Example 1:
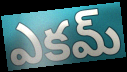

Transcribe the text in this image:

ఎకమ్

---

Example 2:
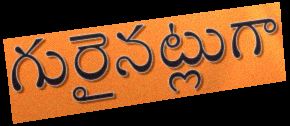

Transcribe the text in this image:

గురైనట్లుగా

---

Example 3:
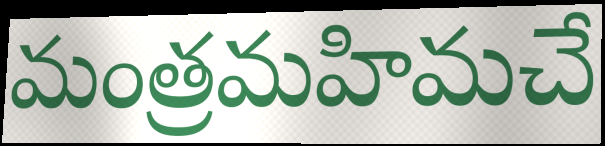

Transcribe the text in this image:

మంత్రమహిమచే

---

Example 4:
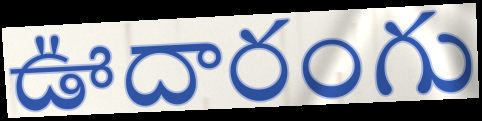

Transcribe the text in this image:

ఊదారంగు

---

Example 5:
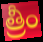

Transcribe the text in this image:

త్రీం